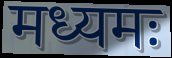
मध्यमः